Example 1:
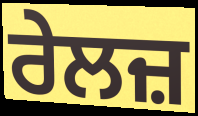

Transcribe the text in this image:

ਰੇਲਜ਼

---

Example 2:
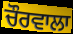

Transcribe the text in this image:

ਚੌਰਵਾਲਾ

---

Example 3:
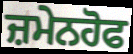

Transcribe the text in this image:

ਜ਼ਮੇਨਹੋਫ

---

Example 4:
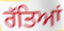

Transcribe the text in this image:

ਰੱਤਿਆਂ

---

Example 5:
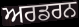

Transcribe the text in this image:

ਅਰਡਰਨ